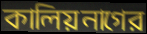
কালিয়নাগের